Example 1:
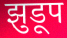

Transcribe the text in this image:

झुडूप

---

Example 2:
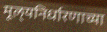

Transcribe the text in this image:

मूल्यनिर्धारणाच्या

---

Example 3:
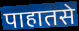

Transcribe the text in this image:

पाहातसे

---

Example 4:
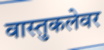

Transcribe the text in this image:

वास्तुकलेवर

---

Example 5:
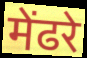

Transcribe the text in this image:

मेंढरे